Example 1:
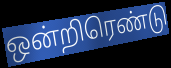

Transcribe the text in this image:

ஒன்றிரெண்டு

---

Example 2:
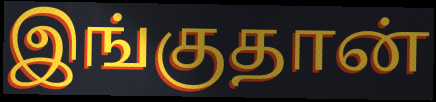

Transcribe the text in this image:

இங்குதான்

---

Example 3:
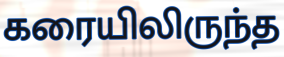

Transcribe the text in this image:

கரையிலிருந்த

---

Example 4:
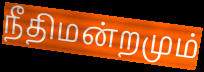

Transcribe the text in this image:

நீதிமன்றமும்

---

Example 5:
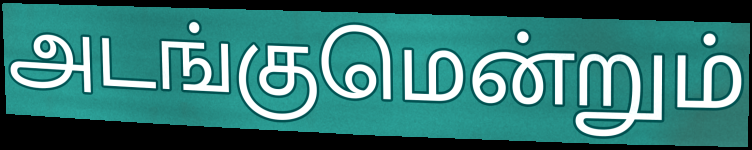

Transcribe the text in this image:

அடங்குமென்றும்